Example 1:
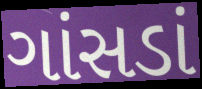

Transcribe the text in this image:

ગાંસડાં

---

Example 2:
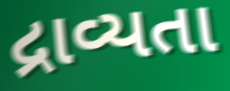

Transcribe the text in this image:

દ્રાવ્યતા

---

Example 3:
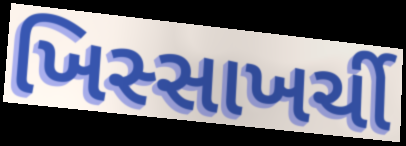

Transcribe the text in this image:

ખિસ્સાખર્ચી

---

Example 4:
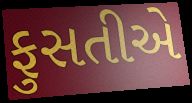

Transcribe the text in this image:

ફુસતીએ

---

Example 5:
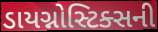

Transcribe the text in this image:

ડાયગ્નોસ્ટિક્સની